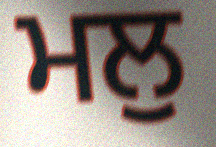
ਮਲੁ